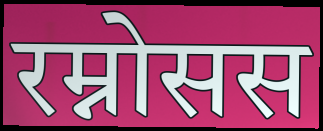
रम्नोसस